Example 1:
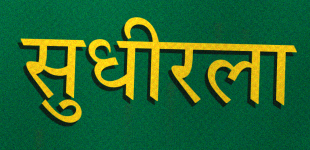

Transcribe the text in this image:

सुधीरला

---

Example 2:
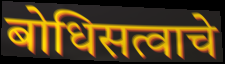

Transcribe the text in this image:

बोधिसत्वाचे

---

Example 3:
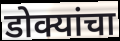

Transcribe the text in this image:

डोक्यांचा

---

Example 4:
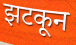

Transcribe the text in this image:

झटकून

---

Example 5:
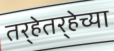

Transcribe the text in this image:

तर्‍हेतर्‍हेच्या